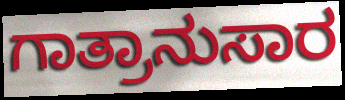
ಗಾತ್ರಾನುಸಾರ